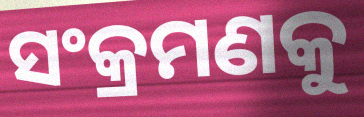
ସଂକ୍ରମଣକୁ